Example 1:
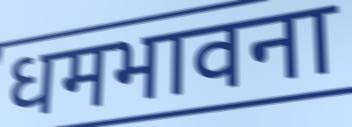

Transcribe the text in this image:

धमभावना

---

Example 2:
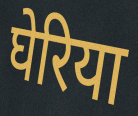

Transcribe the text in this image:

घेरिया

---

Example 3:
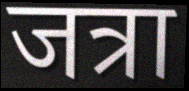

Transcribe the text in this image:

जत्रा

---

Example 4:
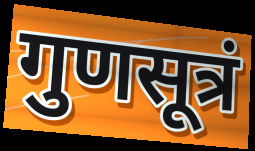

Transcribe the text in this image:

गुणसूत्रं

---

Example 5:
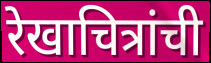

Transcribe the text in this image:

रेखाचित्रांची